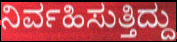
ನಿರ್ವಹಿಸುತ್ತಿದ್ದು